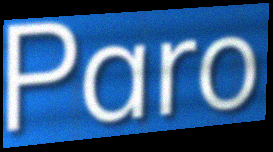
Paro